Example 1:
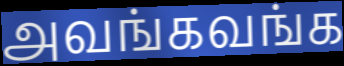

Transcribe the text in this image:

அவங்கவங்க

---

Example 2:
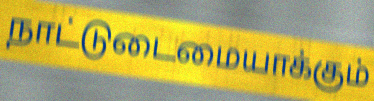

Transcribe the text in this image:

நாட்டுடைமையாக்கும்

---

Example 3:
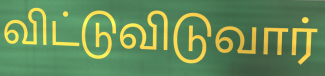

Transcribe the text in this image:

விட்டுவிடுவார்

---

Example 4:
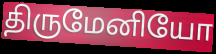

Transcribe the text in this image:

திருமேனியோ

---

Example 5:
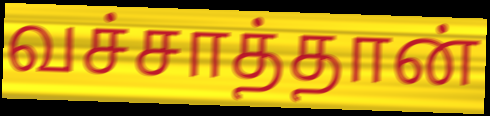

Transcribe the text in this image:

வச்சாத்தான்